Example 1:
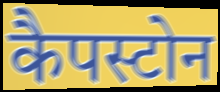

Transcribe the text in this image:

कैपस्टोन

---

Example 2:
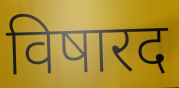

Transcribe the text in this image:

विषारद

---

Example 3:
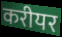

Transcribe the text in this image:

करीयर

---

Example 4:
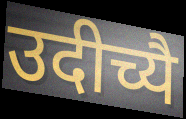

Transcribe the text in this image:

उदीच्यै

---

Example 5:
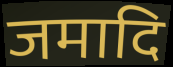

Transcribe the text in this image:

जमादि